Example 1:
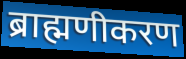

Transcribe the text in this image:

ब्राह्मणीकरण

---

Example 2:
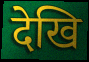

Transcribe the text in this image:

देखि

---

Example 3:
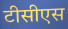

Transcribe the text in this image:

टीसीएस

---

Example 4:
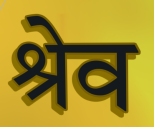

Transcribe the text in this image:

श्रेव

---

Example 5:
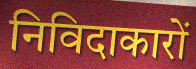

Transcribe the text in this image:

निविदाकारों